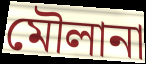
মৌলানা